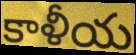
కాళీయ